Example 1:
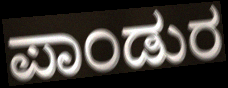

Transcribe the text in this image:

ಪಾಂಡುರ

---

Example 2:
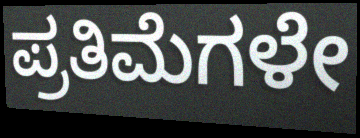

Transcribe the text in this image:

ಪ್ರತಿಮೆಗಳೇ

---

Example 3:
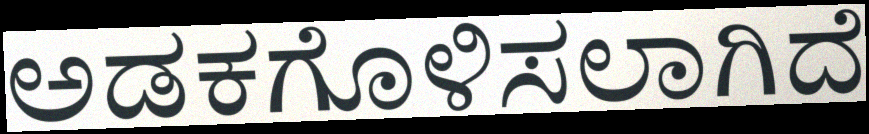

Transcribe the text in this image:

ಅಡಕಗೊಳಿಸಲಾಗಿದೆ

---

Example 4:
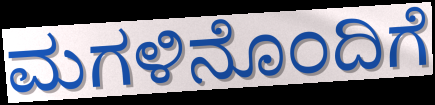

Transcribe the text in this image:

ಮಗಳಿನೊಂದಿಗೆ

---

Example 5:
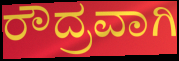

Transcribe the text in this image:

ರೌದ್ರವಾಗಿ